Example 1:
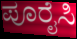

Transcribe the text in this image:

ಪೂರೈಸಿ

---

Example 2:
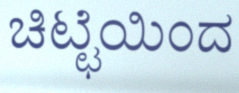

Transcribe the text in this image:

ಚಿಟ್ಟೆಯಿಂದ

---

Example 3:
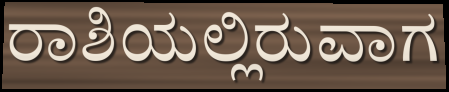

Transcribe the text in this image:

ರಾಶಿಯಲ್ಲಿರುವಾಗ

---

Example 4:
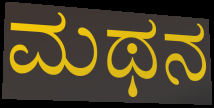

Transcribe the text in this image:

ಮಥನ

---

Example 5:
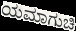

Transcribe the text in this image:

ಯಮಾಗುಚಿ